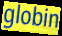
globin